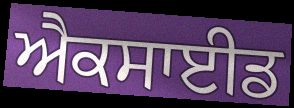
ਐਕਸਾਈਡ